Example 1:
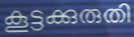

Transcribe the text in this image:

കൂട്ടക്കുരുതി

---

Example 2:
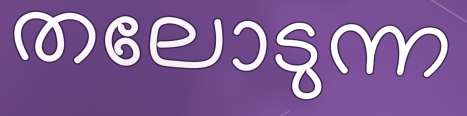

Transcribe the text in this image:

തലോടുന്ന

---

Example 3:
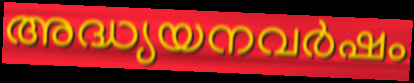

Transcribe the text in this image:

അദ്ധ്യയനവർഷം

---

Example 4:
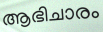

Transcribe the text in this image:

ആഭിചാരം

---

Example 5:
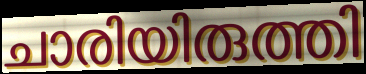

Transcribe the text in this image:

ചാരിയിരുത്തി